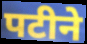
पटीने